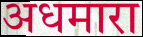
अधमारा